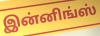
இன்னிங்ஸ்